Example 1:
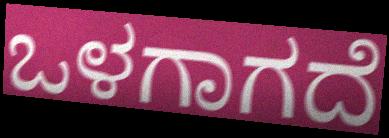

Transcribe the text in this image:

ಒಳಗಾಗದೆ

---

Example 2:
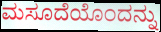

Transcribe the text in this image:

ಮಸೂದೆಯೊಂದನ್ನು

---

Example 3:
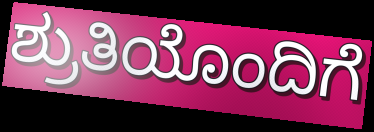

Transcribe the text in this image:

ಶ್ರುತಿಯೊಂದಿಗೆ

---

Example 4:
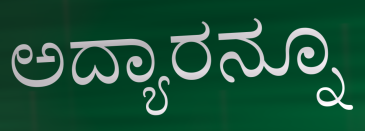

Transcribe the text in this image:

ಅದ್ಯಾರನ್ನೂ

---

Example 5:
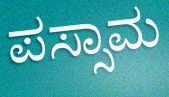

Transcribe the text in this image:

ಪಸ್ಸಾಮ